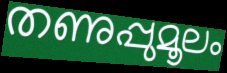
തണുപ്പുമൂലം